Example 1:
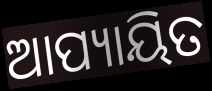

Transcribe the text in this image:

ଆପ୍ଯାୟିତ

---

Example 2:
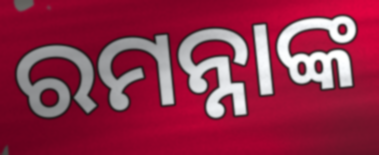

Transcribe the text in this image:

ରମନ୍ନାଙ୍କ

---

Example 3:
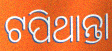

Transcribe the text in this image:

ଟପିଥାନ୍ତା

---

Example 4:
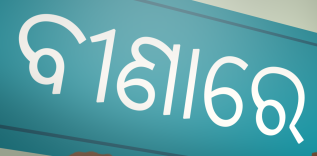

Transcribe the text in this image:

ବୀଣାରେ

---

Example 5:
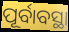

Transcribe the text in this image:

ପୂର୍ବାବସ୍ଥା